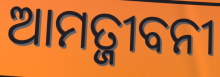
ଆମତ୍ଜୀବନୀ